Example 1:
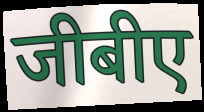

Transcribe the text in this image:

जीबीए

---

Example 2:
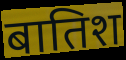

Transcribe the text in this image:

बातिश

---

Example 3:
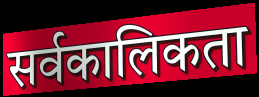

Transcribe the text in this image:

सर्वकालिकता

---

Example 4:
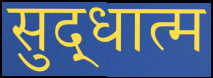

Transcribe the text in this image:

सुद्धात्म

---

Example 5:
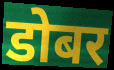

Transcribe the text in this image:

डोबर